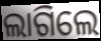
ଲାଗିଲେ